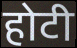
होटी